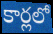
కార్లలో